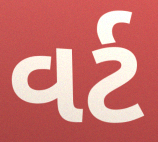
વર્ટ